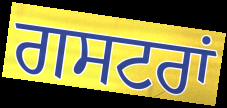
ਗਸਟਰਾਂ